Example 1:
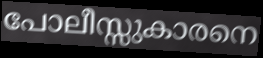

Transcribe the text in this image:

പോലീസ്സുകാരനെ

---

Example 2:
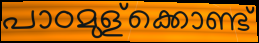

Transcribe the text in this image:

പാഠമുള്ക്കൊണ്ട്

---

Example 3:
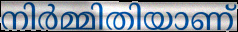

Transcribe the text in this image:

നിർമ്മിതിയാണ്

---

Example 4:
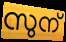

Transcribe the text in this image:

സുന്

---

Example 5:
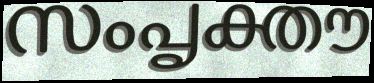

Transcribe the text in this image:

സംപൃക്തൗ